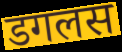
डगलस